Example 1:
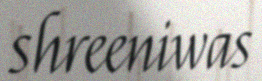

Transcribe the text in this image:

shreeniwas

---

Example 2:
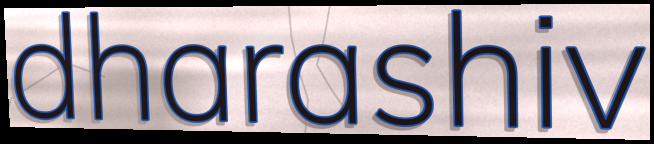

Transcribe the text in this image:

dharashiv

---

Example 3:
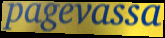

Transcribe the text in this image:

pagevassa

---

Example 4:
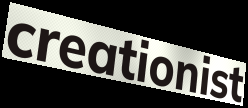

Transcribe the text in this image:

creationist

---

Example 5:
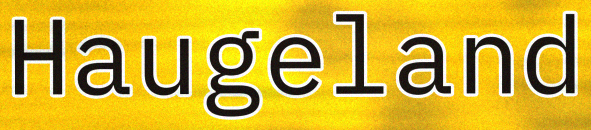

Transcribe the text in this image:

Haugeland